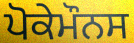
ਪੋਕੇਮੌਨਸ